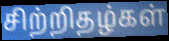
சிற்றிதழ்கள்